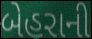
બેહરાની